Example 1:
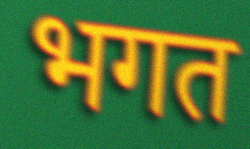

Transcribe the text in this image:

भगत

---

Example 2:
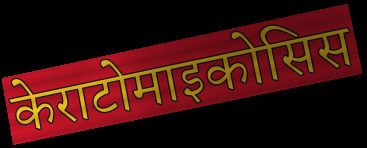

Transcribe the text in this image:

केराटोमाइकोसिस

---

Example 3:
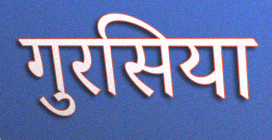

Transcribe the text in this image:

गुरसिया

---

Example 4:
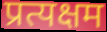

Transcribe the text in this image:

प्रत्यक्षम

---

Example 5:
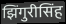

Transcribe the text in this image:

झिंगुरीसिंह